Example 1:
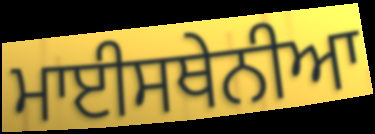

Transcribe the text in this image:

ਮਾਈਸਥੇਨੀਆ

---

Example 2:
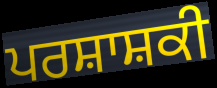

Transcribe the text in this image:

ਪਰਸ਼ਾਸ਼ਕੀ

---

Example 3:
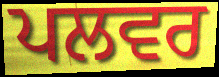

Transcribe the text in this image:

ਪਲਵਰ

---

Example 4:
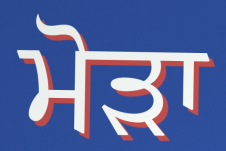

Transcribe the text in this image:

ਮੋੜਾ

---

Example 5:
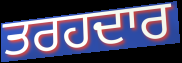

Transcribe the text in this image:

ਤਰਹਦਾਰ